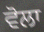
ਵੋਲਾ